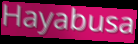
Hayabusa